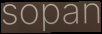
sopan